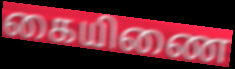
கையிணை